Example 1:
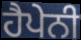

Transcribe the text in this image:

ਹੈਪੇਨੀ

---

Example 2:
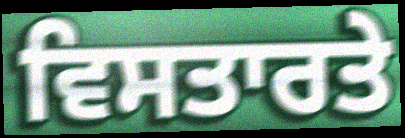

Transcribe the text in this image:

ਵਿਸਤਾਰਤੇ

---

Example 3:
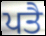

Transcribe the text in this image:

ਪਤੈ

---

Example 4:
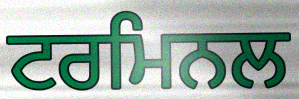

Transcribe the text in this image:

ਟਰਮਿਨਲ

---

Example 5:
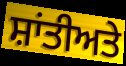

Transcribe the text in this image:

ਸ਼ਾਂਤੀਅਤੇ